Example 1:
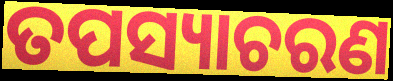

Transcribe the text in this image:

ତପସ୍ୟାଚରଣ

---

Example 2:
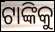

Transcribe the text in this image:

ଟାଙ୍କିକୁ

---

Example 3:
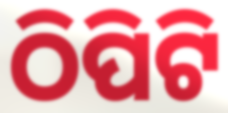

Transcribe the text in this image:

ଠିପିଟି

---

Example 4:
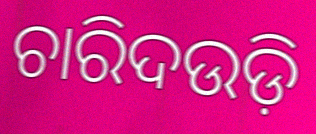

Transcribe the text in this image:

ଚାରିଦଉଡ଼ି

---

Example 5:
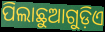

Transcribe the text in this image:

ପିଲାଛୁଆଗୁଡ଼ିଏ